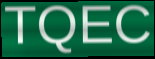
TQEC